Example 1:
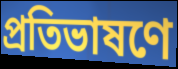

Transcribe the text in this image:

প্রতিভাষণে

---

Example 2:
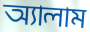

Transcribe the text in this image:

অ্যালাম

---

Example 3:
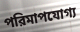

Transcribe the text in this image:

পরিমাপযোগ্য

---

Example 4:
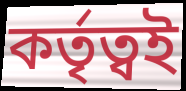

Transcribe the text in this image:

কর্তৃত্বই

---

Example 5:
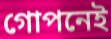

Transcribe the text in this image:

গোপনেই